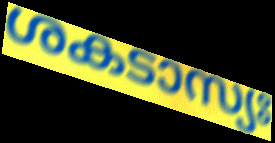
ശകടാസ്യഃ